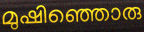
മുഷിഞ്ഞൊരു